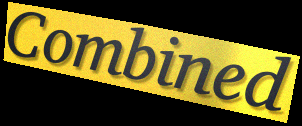
Combined